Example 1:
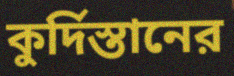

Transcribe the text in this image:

কুর্দিস্তানের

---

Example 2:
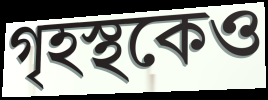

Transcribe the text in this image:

গৃহস্থকেও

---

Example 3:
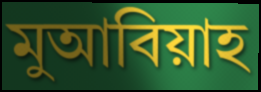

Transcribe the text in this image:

মুআবিয়াহ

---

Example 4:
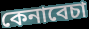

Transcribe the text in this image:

কেনাবেচা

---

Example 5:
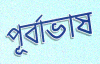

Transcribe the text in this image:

পূর্বাভাষ